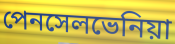
পেনসেলভেনিয়া